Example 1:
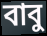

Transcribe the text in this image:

বাবু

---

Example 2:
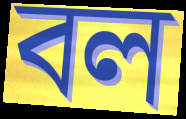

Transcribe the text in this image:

বল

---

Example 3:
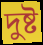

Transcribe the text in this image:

দুষ্ট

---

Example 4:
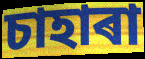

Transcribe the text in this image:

চাহাৰা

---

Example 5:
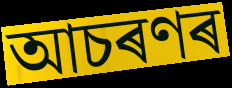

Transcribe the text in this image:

আচৰণৰ